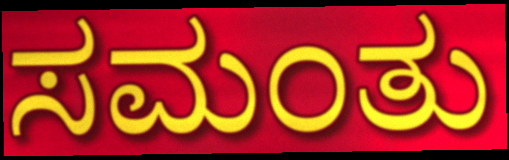
ಸಮಂತು